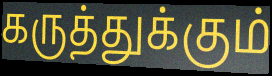
கருத்துக்கும்